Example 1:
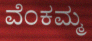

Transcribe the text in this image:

ವೆಂಕಮ್ಮ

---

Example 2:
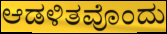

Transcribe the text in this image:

ಆಡಳಿತವೊಂದು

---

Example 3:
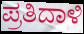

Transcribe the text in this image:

ಪ್ರತಿದಾಳಿ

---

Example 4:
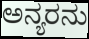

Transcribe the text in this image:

ಅನ್ಯರನು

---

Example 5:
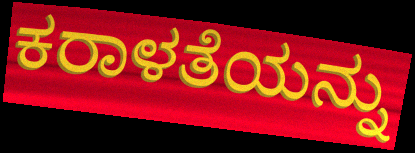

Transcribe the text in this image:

ಕರಾಳತೆಯನ್ನು